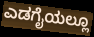
ಎಡಗೈಯಲ್ಲೂ